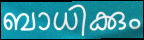
ബാധിക്കും